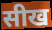
सीख